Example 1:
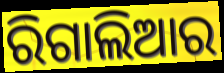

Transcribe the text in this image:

ରିଗାଲିଆର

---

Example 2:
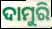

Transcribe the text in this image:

ଦାମୁରି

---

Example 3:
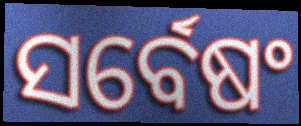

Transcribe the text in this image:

ସର୍ବେଷଂ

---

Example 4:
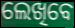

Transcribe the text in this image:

ଲେଖିବେ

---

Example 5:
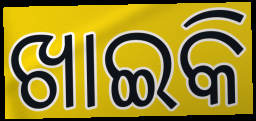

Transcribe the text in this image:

ଖାଇକି